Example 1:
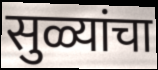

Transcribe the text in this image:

सुळ्यांचा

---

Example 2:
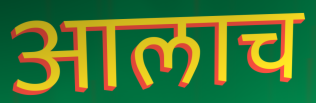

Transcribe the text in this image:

आलाच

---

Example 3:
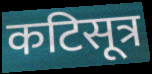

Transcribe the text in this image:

कटिसूत्र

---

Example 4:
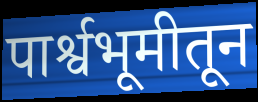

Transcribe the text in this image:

पार्श्वभूमीतून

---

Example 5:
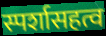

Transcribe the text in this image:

स्पर्शासहत्व